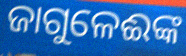
ଜାଗୁଳେଈଙ୍କ